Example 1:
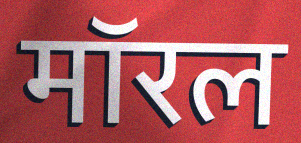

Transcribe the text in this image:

मॉरल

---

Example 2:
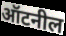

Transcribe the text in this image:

ऑटनील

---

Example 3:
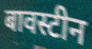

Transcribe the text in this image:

बावस्टीन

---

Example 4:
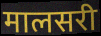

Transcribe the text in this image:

मालसरी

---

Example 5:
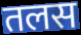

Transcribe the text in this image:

तलस